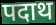
पदाथ